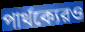
পার্থক্যেরও